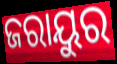
ଜରାୟୁର